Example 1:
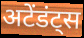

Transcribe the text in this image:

अटेंडंट्स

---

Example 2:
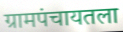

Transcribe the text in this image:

ग्रामपंचायतला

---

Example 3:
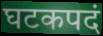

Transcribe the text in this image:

घटकपदं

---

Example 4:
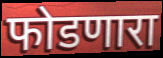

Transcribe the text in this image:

फोडणारा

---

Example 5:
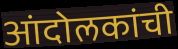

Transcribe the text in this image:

आंदोलकांची